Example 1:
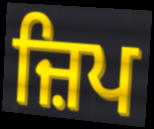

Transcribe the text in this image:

ਜ਼ਿਪ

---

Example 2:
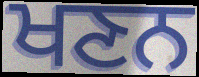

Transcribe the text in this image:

ਖਣਨ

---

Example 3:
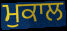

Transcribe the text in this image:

ਮੁਕਾਲ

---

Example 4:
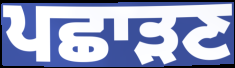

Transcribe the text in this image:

ਪਛਾੜਣ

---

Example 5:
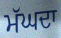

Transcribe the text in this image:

ਮੱਘਦਾ